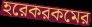
হরেকরকমের